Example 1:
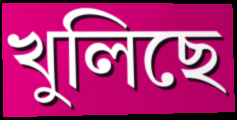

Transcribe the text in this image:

খুলিছে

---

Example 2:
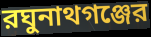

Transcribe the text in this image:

রঘুনাথগঞ্জের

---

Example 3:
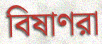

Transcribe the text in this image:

বিষাণরা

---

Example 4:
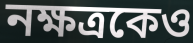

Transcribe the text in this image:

নক্ষত্রকেও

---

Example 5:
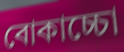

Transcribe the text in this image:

বোকাচ্চো